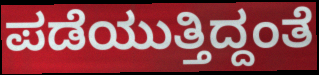
ಪಡೆಯುತ್ತಿದ್ದಂತೆ